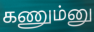
கணும்னு